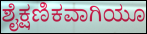
ಶೈಕ್ಷಣಿಕವಾಗಿಯೂ